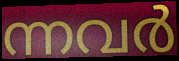
ന്നവർ